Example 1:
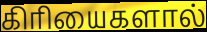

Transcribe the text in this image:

கிரியைகளால்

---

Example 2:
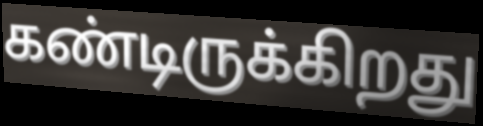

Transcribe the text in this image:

கண்டிருக்கிறது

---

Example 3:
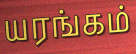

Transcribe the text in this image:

யரங்கம்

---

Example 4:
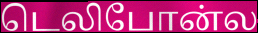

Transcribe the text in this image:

டெலிபோன்ல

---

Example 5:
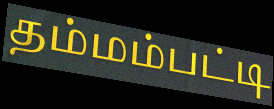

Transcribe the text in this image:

தம்மம்பட்டி